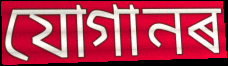
যোগানৰ